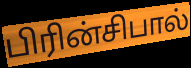
பிரின்சிபால்